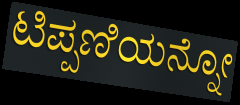
ಟಿಪ್ಪಣಿಯನ್ನೋ